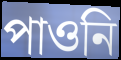
পাওনি